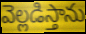
వెల్లడిస్తాను